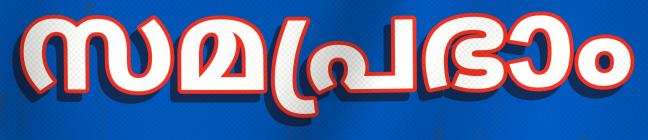
സമപ്രഭാം